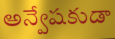
అన్వేషకుడా